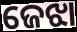
ଜେଝା